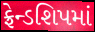
ફ્રેન્ડશિપમાં